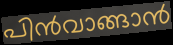
പിൻവാങ്ങാൻ